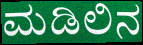
ಮಡಿಲಿನ